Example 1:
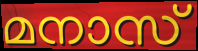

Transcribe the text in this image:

മനാസ്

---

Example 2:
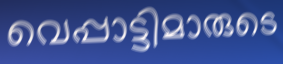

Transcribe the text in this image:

വെപ്പാട്ടിമാരുടെ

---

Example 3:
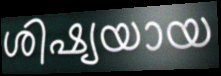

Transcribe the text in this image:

ശിഷ്യയായ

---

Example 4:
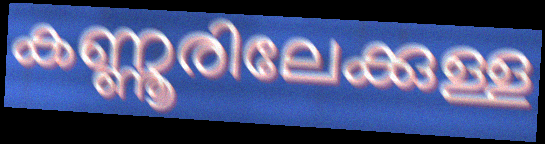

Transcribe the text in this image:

കണ്ണൂരിലേക്കുള്ള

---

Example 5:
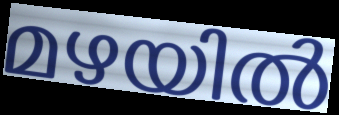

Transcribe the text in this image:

മഴയിൽ